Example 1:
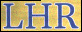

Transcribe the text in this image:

LHR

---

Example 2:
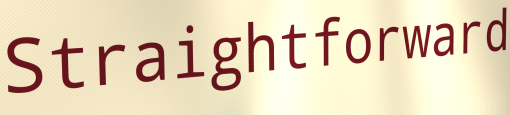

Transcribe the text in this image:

Straightforward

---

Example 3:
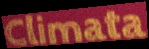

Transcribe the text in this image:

Climata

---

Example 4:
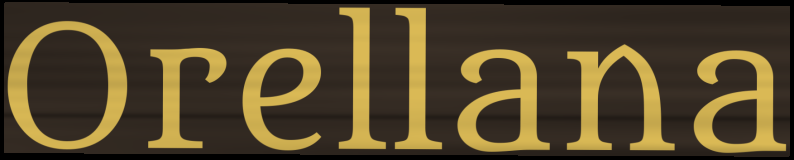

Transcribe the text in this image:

Orellana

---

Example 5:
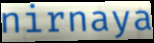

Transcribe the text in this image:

nirnaya